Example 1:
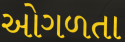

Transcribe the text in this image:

ઓગળતા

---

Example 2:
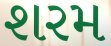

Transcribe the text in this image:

શરમ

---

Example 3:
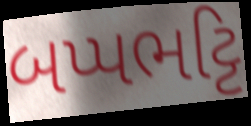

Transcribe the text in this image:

બપ્પભટ્ટિ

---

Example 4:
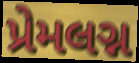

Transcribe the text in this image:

પ્રેમલગ્ન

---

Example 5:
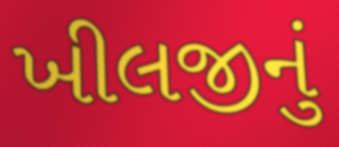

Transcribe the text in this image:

ખીલજીનું